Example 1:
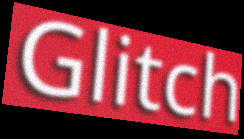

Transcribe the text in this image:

Glitch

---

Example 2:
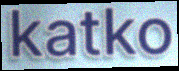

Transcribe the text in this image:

katko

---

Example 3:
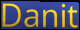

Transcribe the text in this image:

Danit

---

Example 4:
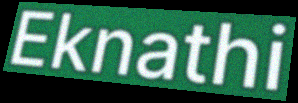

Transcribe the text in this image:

Eknathi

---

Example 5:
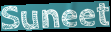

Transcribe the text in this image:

Suneet